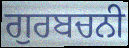
ਗੁਰਬਚਨੀ